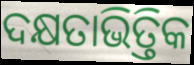
ଦକ୍ଷତାଭିତ୍ତିକ